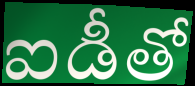
ఐడీతో